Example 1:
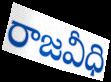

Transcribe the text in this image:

రాజవీధి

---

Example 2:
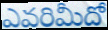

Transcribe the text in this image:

ఎవరిమీదో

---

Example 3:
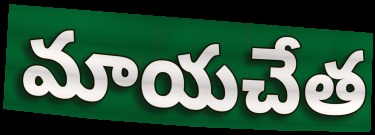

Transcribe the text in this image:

మాయచేత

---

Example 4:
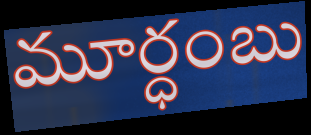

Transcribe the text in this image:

మూర్ధంబు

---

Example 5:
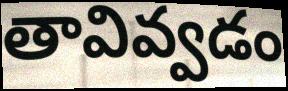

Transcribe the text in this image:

తావివ్వడం